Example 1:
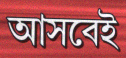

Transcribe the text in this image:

আসবেই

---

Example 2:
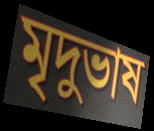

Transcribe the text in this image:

মৃদুভাষ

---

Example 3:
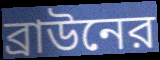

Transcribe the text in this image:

ব্রাউনের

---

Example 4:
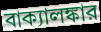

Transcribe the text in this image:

বাক্যালঙ্কার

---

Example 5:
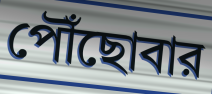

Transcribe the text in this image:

পৌঁছোবার